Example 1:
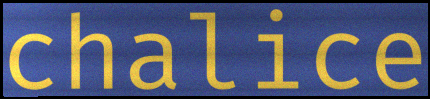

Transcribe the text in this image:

chalice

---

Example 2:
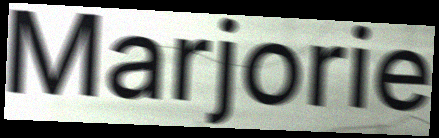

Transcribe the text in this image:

Marjorie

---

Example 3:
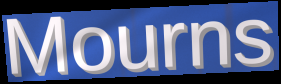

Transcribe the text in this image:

Mourns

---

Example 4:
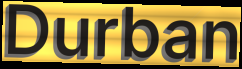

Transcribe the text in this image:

Durban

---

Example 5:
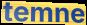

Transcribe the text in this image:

temne